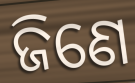
ଜିଣେ